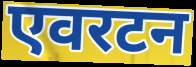
एवरटन